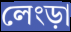
লেংড়া